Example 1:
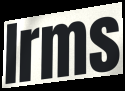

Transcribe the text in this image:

Irms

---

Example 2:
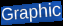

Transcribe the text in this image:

Graphic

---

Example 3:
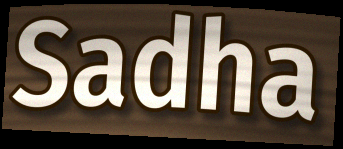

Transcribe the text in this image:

Sadha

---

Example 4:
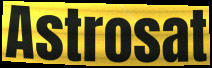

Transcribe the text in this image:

Astrosat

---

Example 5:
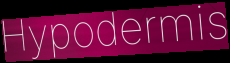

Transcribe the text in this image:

Hypodermis